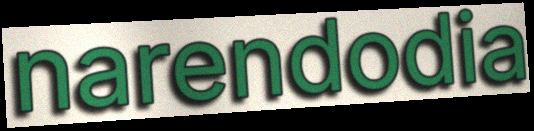
narendodia